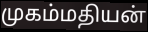
முகம்மதியன்